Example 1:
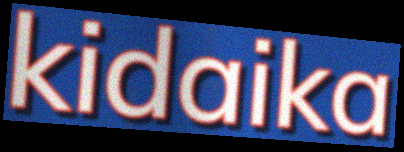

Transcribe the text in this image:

kidaika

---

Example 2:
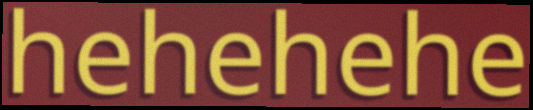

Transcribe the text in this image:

hehehehe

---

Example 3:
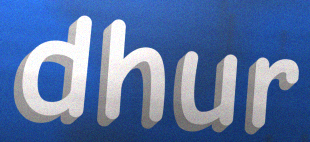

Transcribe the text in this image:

dhur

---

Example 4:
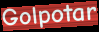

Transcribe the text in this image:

Golpotar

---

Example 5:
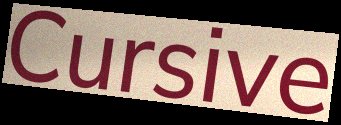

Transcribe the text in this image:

Cursive